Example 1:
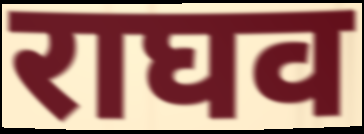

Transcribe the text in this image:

राघव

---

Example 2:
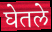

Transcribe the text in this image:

घेतले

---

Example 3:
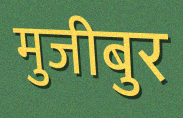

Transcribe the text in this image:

मुजीबुर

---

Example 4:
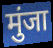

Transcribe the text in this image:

मुंजा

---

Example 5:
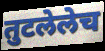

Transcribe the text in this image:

तुटलेलेच